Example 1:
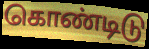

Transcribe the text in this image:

கொண்டிடு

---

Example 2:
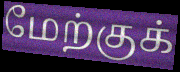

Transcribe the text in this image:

மேற்குக்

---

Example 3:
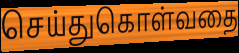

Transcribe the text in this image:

செய்துகொள்வதை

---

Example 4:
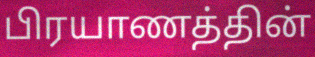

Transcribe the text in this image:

பிரயாணத்தின்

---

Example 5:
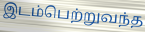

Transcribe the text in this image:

இடம்பெற்றுவந்த